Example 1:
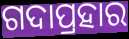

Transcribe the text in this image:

ଗଦାପ୍ରହାର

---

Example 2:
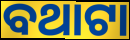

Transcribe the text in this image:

ବଥାଟା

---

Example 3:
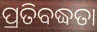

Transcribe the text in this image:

ପ୍ରତିବଦ୍ଧତା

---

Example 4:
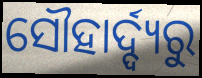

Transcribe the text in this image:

ସୌହାର୍ଦ୍ଦ୍ୟରୁ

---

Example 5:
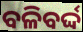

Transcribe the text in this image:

ବଳିବର୍ଦ୍ଦ